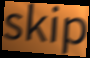
skip